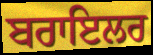
ਬਰਾਇਲਰ